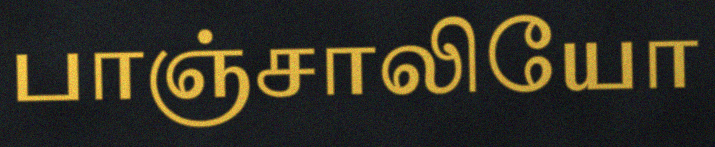
பாஞ்சாலியோ